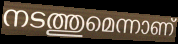
നടത്തുമെന്നാണ്